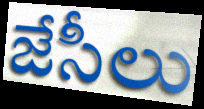
జేసీలు